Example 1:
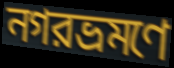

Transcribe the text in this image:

নগরভ্রমণে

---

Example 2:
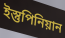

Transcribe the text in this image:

ইস্তুপিনিয়ান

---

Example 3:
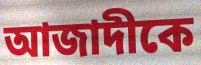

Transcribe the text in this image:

আজাদীকে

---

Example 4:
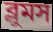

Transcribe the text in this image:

ব্লুমস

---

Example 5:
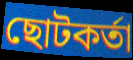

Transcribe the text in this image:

ছোটকর্তা